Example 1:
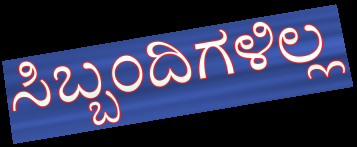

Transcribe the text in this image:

ಸಿಬ್ಬಂದಿಗಳಿಲ್ಲ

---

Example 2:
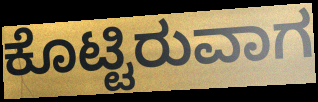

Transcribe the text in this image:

ಕೊಟ್ಟಿರುವಾಗ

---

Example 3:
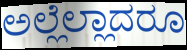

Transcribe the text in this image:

ಅಲ್ಲೆಲ್ಲಾದರೂ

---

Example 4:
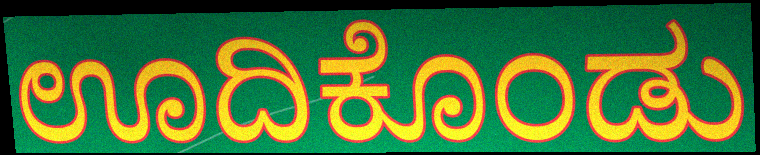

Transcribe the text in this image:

ಊದಿಕೊಂಡು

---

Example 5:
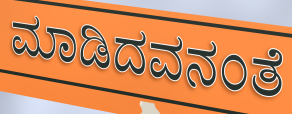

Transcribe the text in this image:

ಮಾಡಿದವನಂತೆ